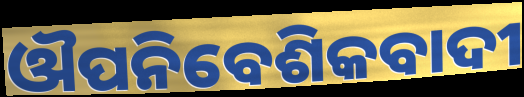
ଔପନିବେଶିକବାଦୀ